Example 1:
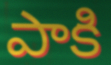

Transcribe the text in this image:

పాకి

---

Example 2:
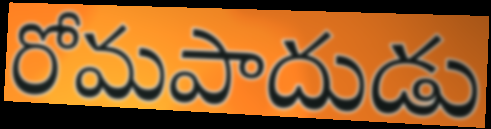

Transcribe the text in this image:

రోమపాదుడు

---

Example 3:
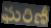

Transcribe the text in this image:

ఘరిణీ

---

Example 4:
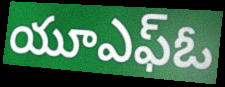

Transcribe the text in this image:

యూఎఫ్ఓ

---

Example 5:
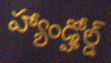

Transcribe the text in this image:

హ్యాండ్హోల్డ్